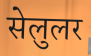
सेलुलर